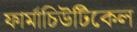
ফাৰ্মাচিউটিকেল